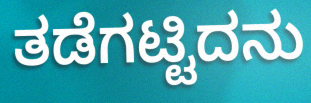
ತಡೆಗಟ್ಟಿದನು